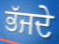
ਭੱਜਦੇ